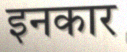
इनकार